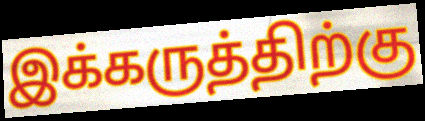
இக்கருத்திற்கு